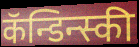
कॅन्डिन्स्की